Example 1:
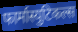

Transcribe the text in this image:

फार्मास्युटिकल्स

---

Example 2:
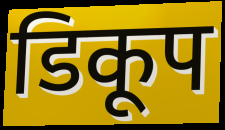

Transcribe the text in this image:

डिकूप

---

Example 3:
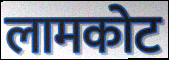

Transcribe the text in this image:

लामकोट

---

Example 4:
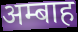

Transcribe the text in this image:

अम्बाह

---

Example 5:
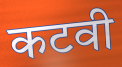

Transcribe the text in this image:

कटवी